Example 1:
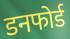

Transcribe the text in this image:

डनफोर्ड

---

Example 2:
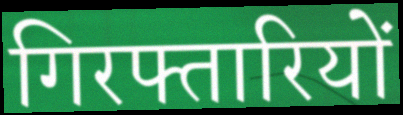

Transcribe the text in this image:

गिरफ्तारियों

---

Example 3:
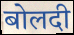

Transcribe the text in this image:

बोलदी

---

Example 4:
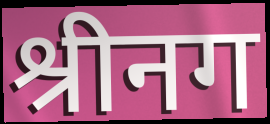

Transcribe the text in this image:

श्रीनग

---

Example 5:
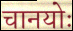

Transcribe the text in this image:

चानयोः